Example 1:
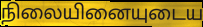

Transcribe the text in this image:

நிலையினையுடைய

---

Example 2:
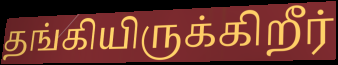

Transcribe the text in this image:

தங்கியிருக்கிறீர்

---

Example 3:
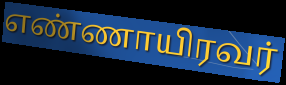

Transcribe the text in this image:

எண்ணாயிரவர்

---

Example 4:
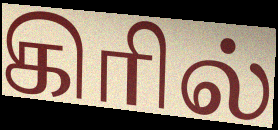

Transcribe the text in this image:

கிரில்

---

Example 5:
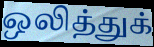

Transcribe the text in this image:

ஒலித்துக்